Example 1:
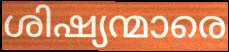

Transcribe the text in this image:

ശിഷ്യന്മാരെ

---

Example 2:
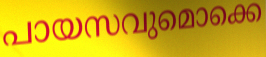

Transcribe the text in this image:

പായസവുമൊക്കെ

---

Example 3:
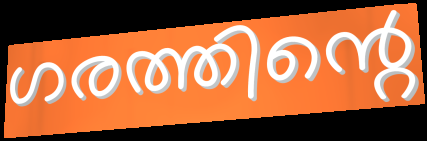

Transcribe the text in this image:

ഗരത്തിന്റെ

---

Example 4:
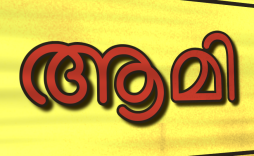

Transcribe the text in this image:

ആമി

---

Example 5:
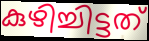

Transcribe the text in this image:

കുഴിച്ചിട്ടത്